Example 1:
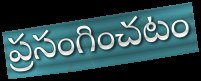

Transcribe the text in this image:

ప్రసంగించటం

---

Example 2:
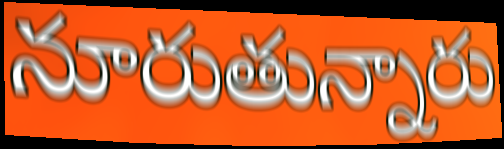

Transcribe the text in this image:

నూరుతున్నారు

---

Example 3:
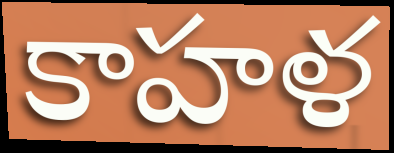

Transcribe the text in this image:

కాహళ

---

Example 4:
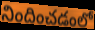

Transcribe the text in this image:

నిందించడంలో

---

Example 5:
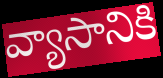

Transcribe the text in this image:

వ్యాసానికి